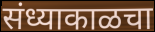
संध्याकाळचा